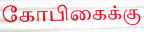
கோபிகைக்கு